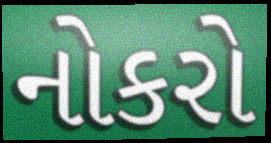
નોકરો